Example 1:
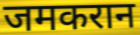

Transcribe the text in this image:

जमकरान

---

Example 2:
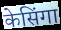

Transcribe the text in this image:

केसिंगा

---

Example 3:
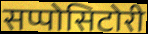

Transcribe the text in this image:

सप्पोसिटोरी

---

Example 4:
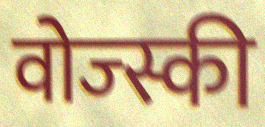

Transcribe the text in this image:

वोज्स्की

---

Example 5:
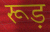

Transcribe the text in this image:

रूड़